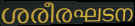
ശരീരഘടന